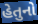
હેતુનો